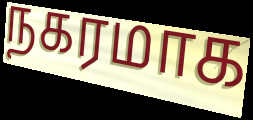
நகரமாக